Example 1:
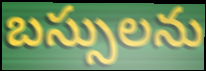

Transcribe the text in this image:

బస్సులను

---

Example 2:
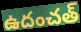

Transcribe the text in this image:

ఉదంచత్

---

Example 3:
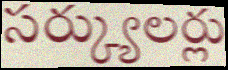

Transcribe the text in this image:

సర్క్యులర్లు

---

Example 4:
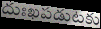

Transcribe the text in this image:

దుఃఖపడుటకు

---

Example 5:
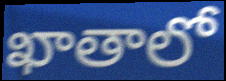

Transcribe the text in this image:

ఖాతాలో